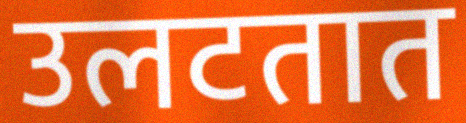
उलटतात